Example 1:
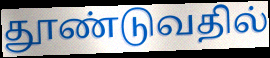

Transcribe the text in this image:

தூண்டுவதில்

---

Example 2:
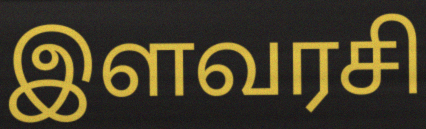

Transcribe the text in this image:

இளவரசி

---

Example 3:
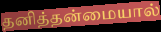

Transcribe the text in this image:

தனித்தன்மையால்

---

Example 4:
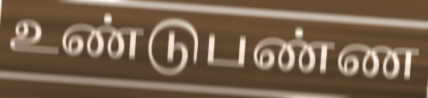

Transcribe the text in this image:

உண்டுபண்ண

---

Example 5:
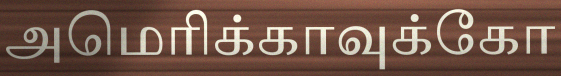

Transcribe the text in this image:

அமெரிக்காவுக்கோ